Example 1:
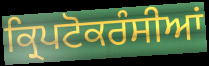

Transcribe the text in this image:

ਕ੍ਰਿਪਟੋਕਰੰਸੀਆਂ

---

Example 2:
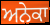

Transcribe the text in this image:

ਅਨੇਕਾ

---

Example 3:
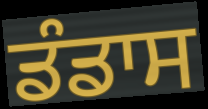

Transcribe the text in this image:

ਡੰਡਾਸ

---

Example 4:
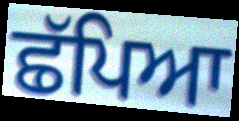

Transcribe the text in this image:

ਛੱਪਿਆ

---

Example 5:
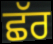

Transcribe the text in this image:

ਛੱਰ